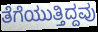
ತೆಗೆಯುತ್ತಿದ್ದವು